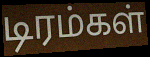
டிரம்கள்